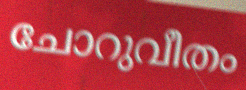
ചോറുവീതം